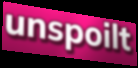
unspoilt